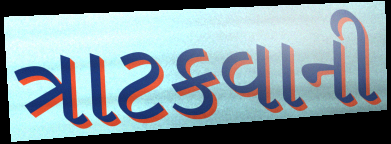
ત્રાટકવાની